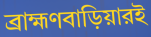
ব্রাহ্মণবাড়িয়ারই